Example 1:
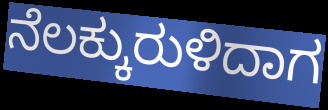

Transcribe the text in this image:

ನೆಲಕ್ಕುರುಳಿದಾಗ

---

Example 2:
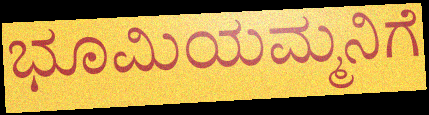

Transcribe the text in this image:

ಭೂಮಿಯಮ್ಮನಿಗೆ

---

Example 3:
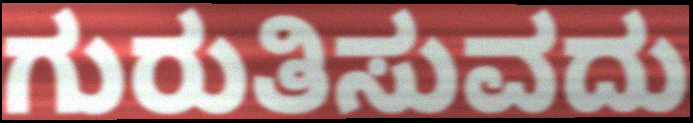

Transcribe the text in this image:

ಗುರುತಿಸುವದು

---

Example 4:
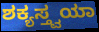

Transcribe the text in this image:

ಶಕ್ಯಸ್ತ್ವಯಾ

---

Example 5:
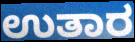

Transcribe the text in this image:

ಉತಾರ